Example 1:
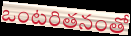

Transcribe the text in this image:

ఒంటరితనంతో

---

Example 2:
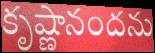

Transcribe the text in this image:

కృష్ణానందను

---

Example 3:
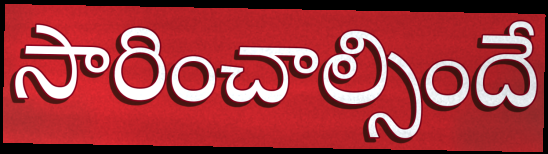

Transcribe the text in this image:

సారించాల్సిందే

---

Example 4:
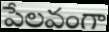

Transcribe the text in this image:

పేలవంగా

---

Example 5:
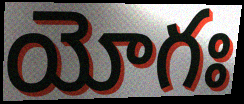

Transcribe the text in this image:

యోగః